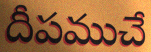
దీపముచే